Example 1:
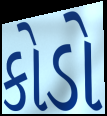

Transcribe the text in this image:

કોડો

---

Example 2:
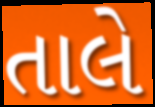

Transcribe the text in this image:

તાલે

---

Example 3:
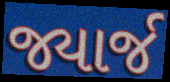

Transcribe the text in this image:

જ્યાર્જ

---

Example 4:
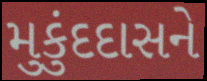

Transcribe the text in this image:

મુકુંદદાસને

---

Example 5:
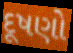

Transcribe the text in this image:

દૂષણો